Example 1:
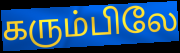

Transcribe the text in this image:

கரும்பிலே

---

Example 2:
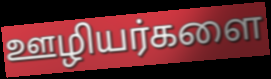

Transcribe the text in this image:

ஊழியர்களை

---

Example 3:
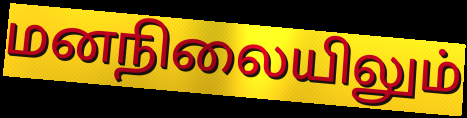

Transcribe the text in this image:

மனநிலையிலும்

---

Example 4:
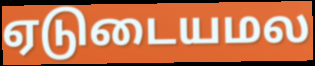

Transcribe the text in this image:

ஏடுடையமல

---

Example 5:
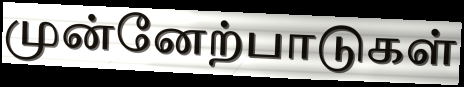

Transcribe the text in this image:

முன்னேற்பாடுகள்